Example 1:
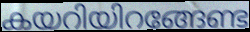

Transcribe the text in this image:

കയറിയിറങ്ങേണ്ട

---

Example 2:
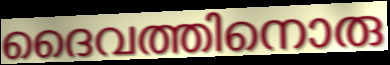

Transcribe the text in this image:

ദൈവത്തിനൊരു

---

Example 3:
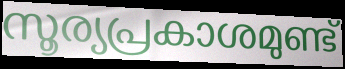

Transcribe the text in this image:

സൂര്യപ്രകാശമുണ്ട്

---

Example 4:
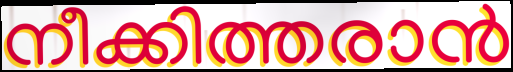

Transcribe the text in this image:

നീക്കിത്തരാൻ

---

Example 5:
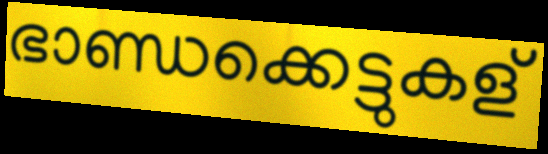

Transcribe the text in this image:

ഭാണ്ഡക്കെട്ടുകള്